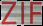
ZIF